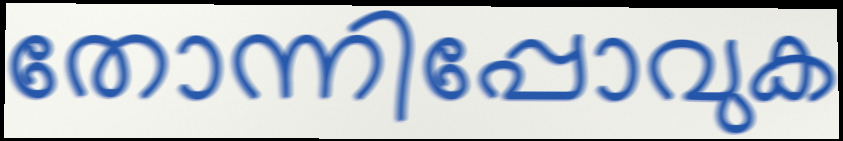
തോന്നിപ്പോവുക